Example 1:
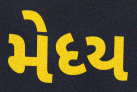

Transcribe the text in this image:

મેધ્ય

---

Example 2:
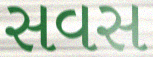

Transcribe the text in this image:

સવસ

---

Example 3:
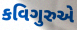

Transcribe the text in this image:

કવિગુરુએ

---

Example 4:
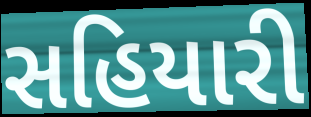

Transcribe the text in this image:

સહિયારી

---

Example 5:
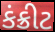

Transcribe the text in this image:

કંક્રીટ